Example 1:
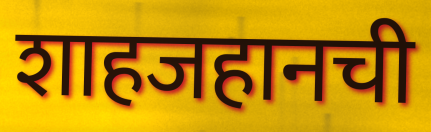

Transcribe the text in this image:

शाहजहानची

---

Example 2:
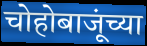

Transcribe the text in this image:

चोहोबाजूंच्या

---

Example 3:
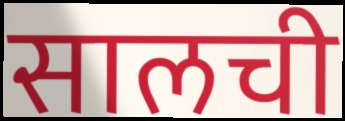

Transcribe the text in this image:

सालची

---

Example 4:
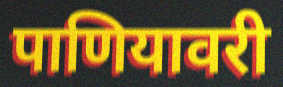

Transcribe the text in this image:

पाणियावरी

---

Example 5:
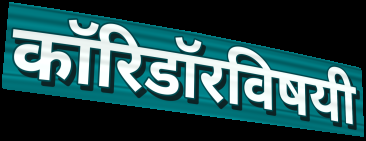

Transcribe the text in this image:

कॉरिडॉरविषयी